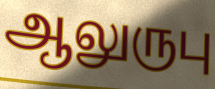
ஆலுருபு